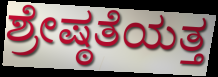
ಶ್ರೇಷ್ಠತೆಯತ್ತ